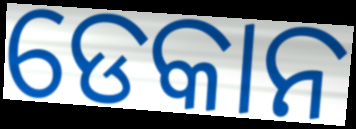
ଡେକାନ